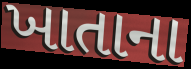
ખાતાના